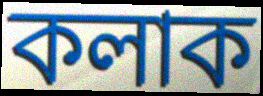
কলাক